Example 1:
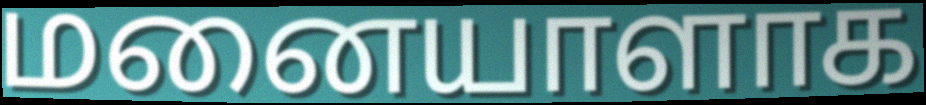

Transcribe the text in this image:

மனையாளாக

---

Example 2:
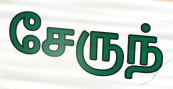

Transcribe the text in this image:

சேருந்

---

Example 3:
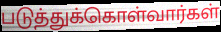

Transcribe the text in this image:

படுத்துக்கொள்வார்கள்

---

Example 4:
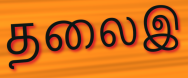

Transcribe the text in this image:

தலைஇ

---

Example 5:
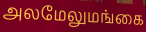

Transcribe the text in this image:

அலமேலுமங்கை